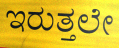
ಇರುತ್ತಲೇ